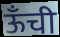
ऊँची